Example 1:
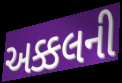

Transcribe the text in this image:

અક્કલની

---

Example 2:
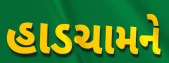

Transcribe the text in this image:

હાડચામને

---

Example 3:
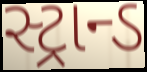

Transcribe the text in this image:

સ્ટ્રાન્ડ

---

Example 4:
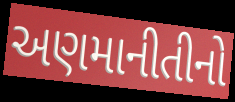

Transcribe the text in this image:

અણમાનીતીનો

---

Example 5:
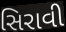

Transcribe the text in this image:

સિરાવી